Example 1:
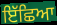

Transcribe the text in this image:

ਇੱਛਿਆ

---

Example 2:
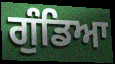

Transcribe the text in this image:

ਗੁੰਡਿਆ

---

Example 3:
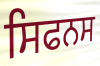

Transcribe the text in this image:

ਸਿਫਨਸ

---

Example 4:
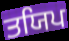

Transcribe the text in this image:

ਤਯਿਪ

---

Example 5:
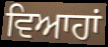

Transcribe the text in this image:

ਵਿਆਹਾਂ